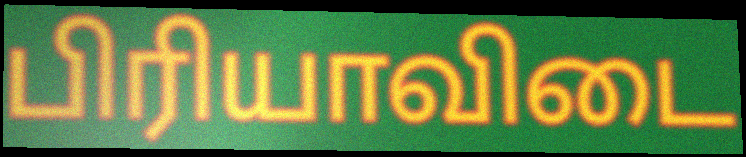
பிரியாவிடை